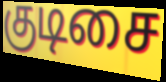
குடிசை